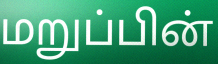
மறுப்பின்